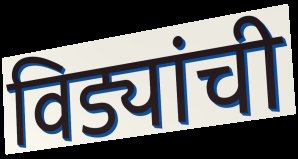
विड्यांची